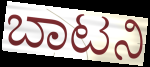
ಬಾಟನಿ